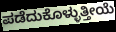
ಪಡೆದುಕೊಳ್ಳುತ್ತೀಯೆ